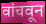
वांचवून